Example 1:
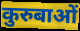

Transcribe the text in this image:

कुरुबाओं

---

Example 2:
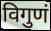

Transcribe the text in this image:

विगुणं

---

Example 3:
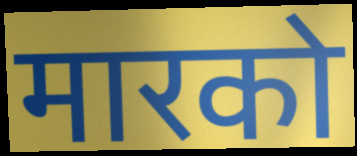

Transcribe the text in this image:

मारको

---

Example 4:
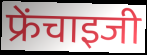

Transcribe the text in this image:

फ्रेंचाइजी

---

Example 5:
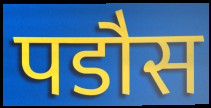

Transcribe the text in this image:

पडौस